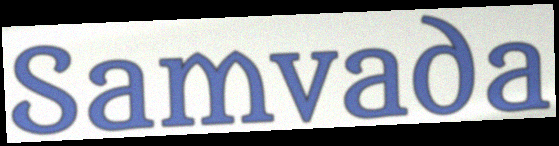
Samvada